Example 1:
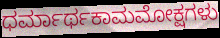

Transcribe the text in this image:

ಧರ್ಮಾರ್ಥಕಾಮಮೋಕ್ಷಗಳು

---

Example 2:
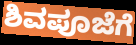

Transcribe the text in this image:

ಶಿವಪೂಜೆಗೆ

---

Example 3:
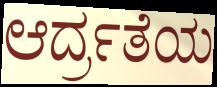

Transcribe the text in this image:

ಆರ್ದ್ರತೆಯ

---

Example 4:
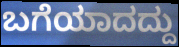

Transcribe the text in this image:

ಬಗೆಯಾದದ್ದು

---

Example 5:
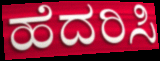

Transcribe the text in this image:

ಹೆದರಿಸಿ